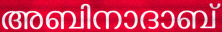
അബിനാദാബ്